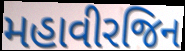
મહાવીરજિન